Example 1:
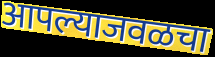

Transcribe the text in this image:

आपल्याजवळचा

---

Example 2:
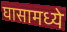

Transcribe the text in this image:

घासामध्ये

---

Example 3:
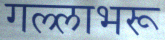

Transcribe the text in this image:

गल्लाभरू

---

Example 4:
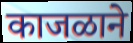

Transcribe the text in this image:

काजळाने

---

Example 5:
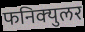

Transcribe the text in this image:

फनिक्युलर